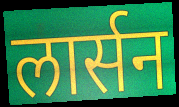
लार्सन